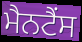
ਮੈਨਟੈਂਸ